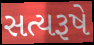
સત્યરૂષે